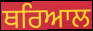
ਥਰਿਆਲ